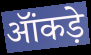
ऑंकड़े